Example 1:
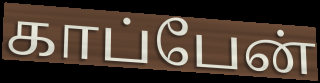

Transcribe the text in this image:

காப்பேன்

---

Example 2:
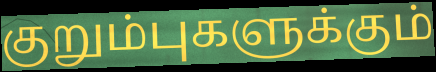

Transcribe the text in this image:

குறும்புகளுக்கும்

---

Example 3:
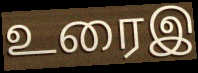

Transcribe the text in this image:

உரைஇ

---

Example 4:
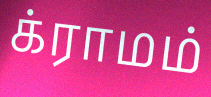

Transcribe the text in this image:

க்ராமம்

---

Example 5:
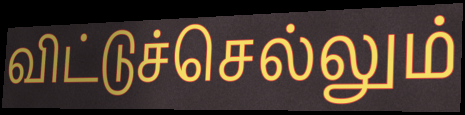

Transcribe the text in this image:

விட்டுச்செல்லும்